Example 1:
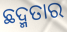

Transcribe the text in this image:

ଛଦ୍ମତାର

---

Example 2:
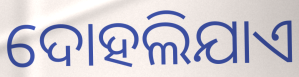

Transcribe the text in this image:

ଦୋହଲିଯାଏ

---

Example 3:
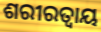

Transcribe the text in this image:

ଶରୀରତ୍ୱାୟ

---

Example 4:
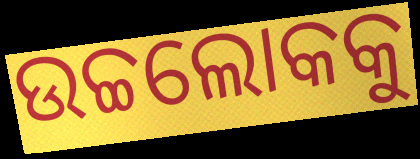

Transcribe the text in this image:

ଉଚ୍ଚଲୋକକୁ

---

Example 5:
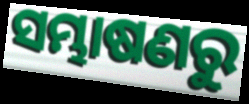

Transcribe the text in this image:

ସମ୍ଭାଷଣରୁ